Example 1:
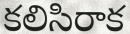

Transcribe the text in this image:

కలిసిరాక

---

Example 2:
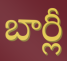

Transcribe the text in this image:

బార్లీ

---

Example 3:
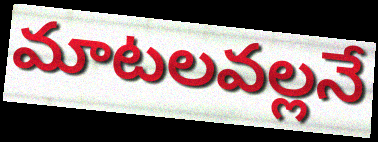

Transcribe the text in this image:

మాటలవల్లనే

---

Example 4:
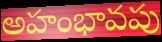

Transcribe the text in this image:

అహంభావపు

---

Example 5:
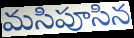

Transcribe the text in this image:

మసిపూసిన